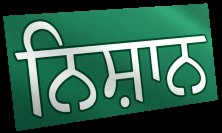
ਨਿਸ਼ਾਨ